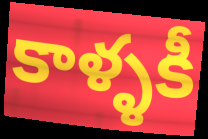
కాళ్ళకీ